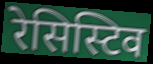
रेसिस्टिव